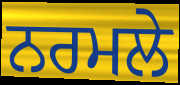
ਨਰਮਲੇ